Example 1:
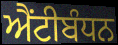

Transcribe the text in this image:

ਐਂਟੀਬੰਧਨ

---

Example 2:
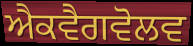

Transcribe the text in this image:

ਐਕਵੈਗਵੋਲਵ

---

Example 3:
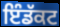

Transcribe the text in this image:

ਇੰਡੱਕਟ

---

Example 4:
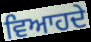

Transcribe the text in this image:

ਵਿਆਹਦੇ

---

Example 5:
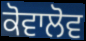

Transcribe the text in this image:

ਕੋਵਾਲੋਵ